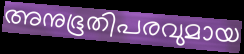
അനുഭൂതിപരവുമായ